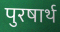
पुरषार्थ